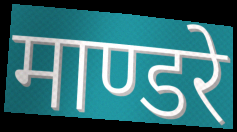
माण्डरे